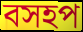
বসহপ